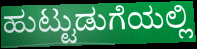
ಹುಟ್ಟುಡುಗೆಯಲ್ಲಿ